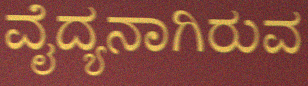
ವೈದ್ಯನಾಗಿರುವ